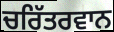
ਚਰਿੱਤਰਵਾਨ